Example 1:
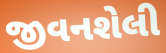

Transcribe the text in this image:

જીવનશેલી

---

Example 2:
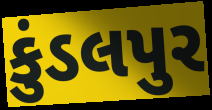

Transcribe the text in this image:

કુંડલપુર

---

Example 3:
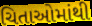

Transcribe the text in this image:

ચિતાઓમાંથી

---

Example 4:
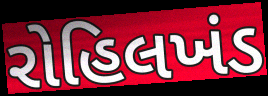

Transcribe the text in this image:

રોહિલખંડ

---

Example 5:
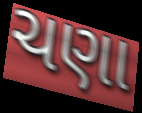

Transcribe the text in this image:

ચણા